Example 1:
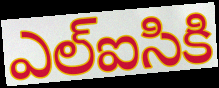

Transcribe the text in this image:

ఎల్ఐసికి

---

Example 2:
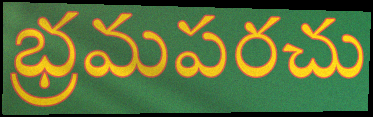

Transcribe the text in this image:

భ్రమపరచు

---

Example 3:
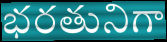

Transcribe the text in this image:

భరతునిగా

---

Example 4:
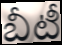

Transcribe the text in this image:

బీటీ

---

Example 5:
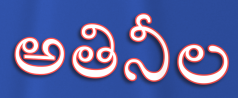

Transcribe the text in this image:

అతినీల